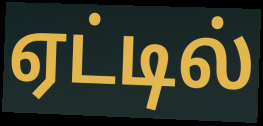
ஏட்டில்